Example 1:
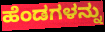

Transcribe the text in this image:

ಹೆಂಡಗಳನ್ನು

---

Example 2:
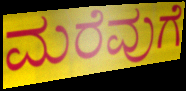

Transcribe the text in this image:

ಮರೆವುಗೆ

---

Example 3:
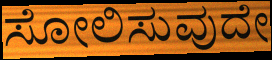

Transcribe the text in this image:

ಸೋಲಿಸುವುದೇ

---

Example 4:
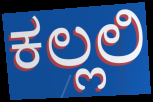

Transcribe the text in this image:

ಕಲ್ಲಲಿ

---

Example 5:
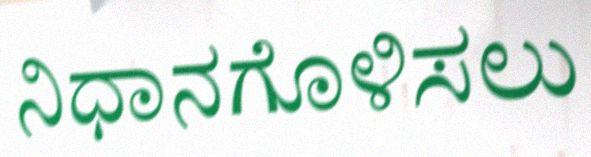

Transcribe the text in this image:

ನಿಧಾನಗೊಳಿಸಲು